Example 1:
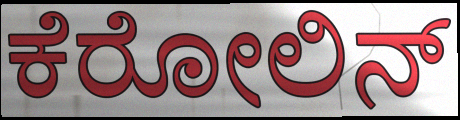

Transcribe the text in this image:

ಕೆರೋಲಿನ್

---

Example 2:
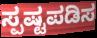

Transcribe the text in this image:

ಸ್ಪಷ್ಟಪಡಿಸ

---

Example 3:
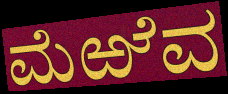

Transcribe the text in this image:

ಮೆಱೆವ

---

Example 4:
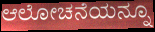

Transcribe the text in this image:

ಆಲೋಚನೆಯನ್ನೂ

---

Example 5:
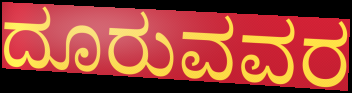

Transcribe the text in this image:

ದೂರುವವರ